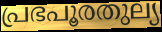
പ്രഭപൂരതുല്യ